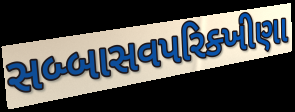
સબ્બાસવપરિક્ખીણા